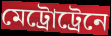
মেট্রোট্রেনে